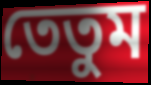
তেতুম